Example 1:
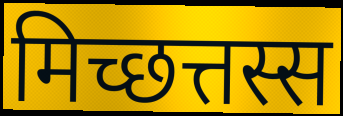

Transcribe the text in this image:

मिच्छत्तस्स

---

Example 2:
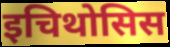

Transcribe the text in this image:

इचिथोसिस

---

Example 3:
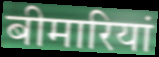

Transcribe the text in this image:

बीमारियां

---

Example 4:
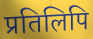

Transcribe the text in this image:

प्रतिलिपि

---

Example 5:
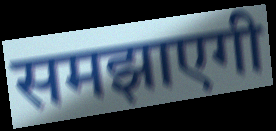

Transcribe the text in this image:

समझाएगी